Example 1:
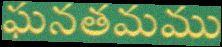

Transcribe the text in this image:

ఘనతమము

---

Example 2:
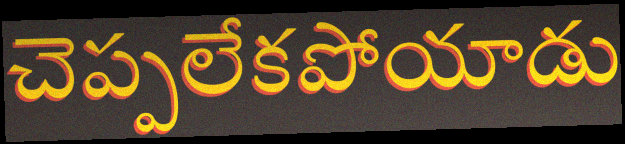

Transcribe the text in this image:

చెప్పలేకపోయాడు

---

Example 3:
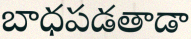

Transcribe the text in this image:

బాధపడతాడా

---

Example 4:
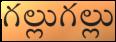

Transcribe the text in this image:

గల్లుగల్లు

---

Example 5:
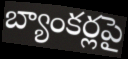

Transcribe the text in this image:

బ్యాంకర్లపై